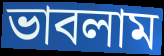
ভাবলাম